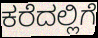
ಕರೆದಲ್ಲಿಗೆ